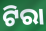
ଟିରା